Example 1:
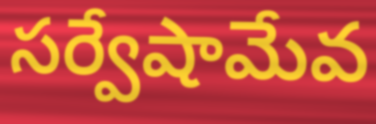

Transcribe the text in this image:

సర్వేషామేవ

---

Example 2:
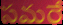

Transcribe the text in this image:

సమరే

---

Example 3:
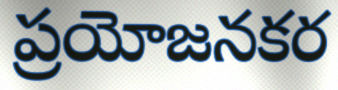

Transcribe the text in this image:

ప్రయోజనకర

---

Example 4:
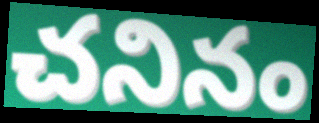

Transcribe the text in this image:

చనినం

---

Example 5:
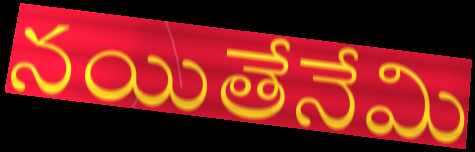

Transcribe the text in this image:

నయితేనేమి